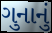
ગુનાનું